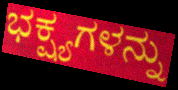
ಭಕ್ಷ್ಯಗಳನ್ನು